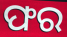
ଫର